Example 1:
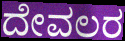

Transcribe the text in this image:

ದೇವಲರ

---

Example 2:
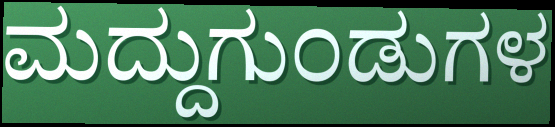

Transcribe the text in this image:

ಮದ್ದುಗುಂಡುಗಳ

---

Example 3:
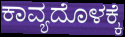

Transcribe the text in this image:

ಕಾವ್ಯದೊಳಕ್ಕೆ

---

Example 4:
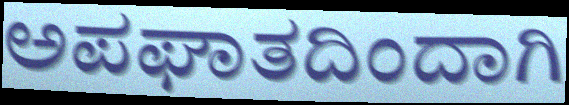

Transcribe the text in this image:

ಅಪಘಾತದಿಂದಾಗಿ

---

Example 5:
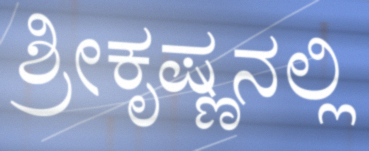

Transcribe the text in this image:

ಶ್ರೀಕೃಷ್ಣನಲ್ಲಿ